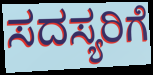
ಸದಸ್ಯರಿಗೆ